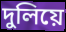
দুলিয়ে